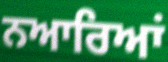
ਨਆਰਿਆਂ